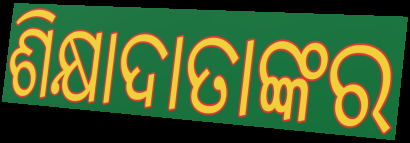
ଶିକ୍ଷାଦାତାଙ୍କର